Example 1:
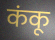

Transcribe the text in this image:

कंकू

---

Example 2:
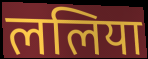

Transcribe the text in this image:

ललिया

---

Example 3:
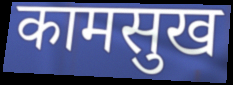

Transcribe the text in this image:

कामसुख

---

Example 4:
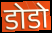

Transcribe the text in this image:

डोडो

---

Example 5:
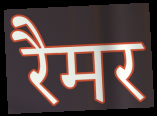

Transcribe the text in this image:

रैमर